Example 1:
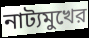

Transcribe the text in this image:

নাট্যমুখের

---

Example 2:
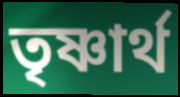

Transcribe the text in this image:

তৃষ্ণার্থ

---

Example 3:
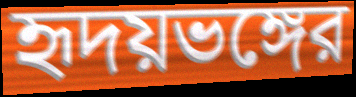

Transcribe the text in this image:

হৃদয়ভঙ্গের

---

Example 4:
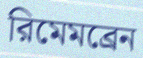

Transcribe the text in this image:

রিমেমব্রেন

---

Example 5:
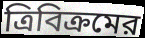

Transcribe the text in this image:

ত্রিবিক্রমের